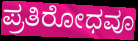
ಪ್ರತಿರೋಧವೂ